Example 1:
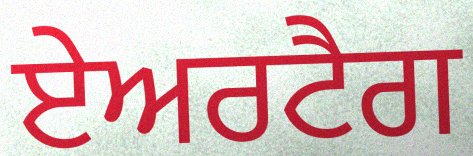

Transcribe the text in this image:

ਏਅਰਟੈਗ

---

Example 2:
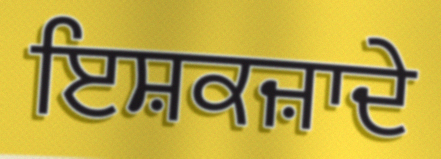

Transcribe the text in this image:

ਇਸ਼ਕਜ਼ਾਦੇ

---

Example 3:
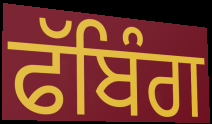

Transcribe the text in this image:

ਫੱਬਿੰਗ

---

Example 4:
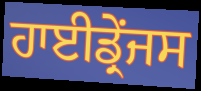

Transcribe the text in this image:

ਹਾਈਡ੍ਰੇਂਜਸ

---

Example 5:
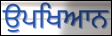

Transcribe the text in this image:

ਉਪਖਿਆਨ